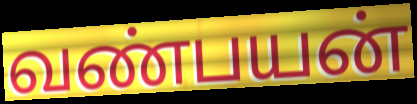
வண்பயன்